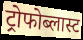
ट्रोफोब्लास्ट